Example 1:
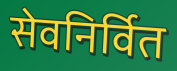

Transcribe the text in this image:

सेवनिर्वित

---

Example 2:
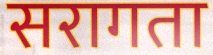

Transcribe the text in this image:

सरागता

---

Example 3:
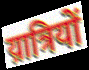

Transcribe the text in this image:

य़ात्रियों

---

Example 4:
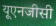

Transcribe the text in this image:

यूएनजीसी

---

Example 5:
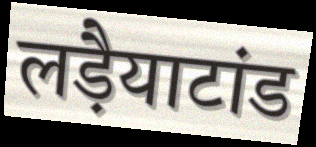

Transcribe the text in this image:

लड़ैयाटांड